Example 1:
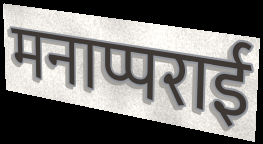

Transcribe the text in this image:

मनाप्पराई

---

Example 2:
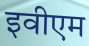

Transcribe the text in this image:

इवीएम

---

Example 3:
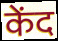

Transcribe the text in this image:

केंद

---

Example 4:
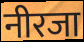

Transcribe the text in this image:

नीरजा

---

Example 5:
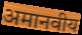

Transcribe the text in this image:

अमानवीय